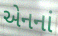
એનનાં